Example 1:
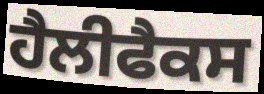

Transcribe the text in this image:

ਹੈਲੀਫੈਕਸ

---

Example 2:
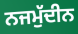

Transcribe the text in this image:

ਨਜਮੁੱਦੀਨ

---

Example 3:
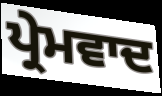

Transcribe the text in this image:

ਪ੍ਰੇਮਵਾਦ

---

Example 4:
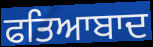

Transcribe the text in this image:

ਫਤਿਆਬਾਦ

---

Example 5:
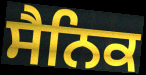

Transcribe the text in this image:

ਸੈਨਿਕ